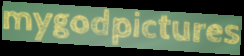
mygodpictures